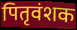
पितृवंशक